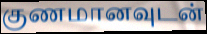
குணமானவுடன்